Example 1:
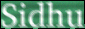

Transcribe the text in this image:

Sidhu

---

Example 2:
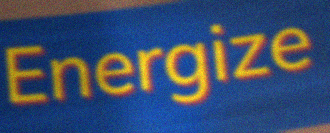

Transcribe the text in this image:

Energize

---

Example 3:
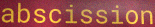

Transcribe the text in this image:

abscission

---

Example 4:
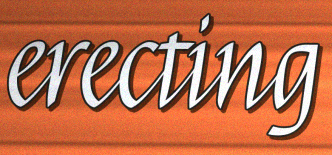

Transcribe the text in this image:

erecting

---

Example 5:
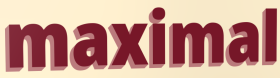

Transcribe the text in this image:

maximal